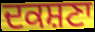
ਦਕਸ਼ਣਾ